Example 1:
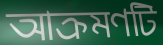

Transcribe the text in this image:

আক্রমণটি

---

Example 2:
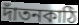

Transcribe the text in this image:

দাঁতনকাঠি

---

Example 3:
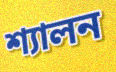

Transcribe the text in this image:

শ্যালন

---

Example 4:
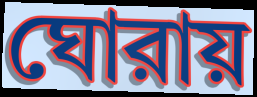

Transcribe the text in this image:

ঘোরায়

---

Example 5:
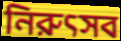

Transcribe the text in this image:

নিরুৎসব